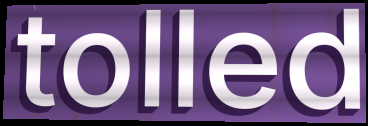
tolled